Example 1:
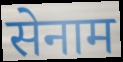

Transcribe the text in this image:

सेनाम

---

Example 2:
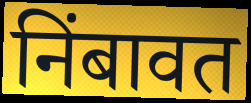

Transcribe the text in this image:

निंबावत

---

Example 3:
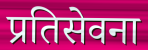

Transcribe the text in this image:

प्रतिसेवना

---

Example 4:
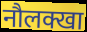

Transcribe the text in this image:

नौलक्खा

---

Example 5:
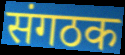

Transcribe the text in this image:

संगठक